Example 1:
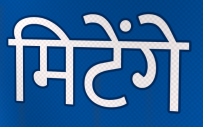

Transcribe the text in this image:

मिटेंगे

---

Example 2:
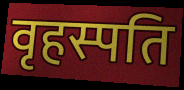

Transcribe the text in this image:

वृहस्पति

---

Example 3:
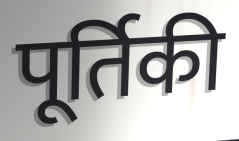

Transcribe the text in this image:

पूर्तिकी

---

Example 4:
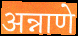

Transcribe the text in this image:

अन्नाणे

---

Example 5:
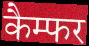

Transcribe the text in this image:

कैम्फर